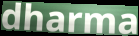
dharma